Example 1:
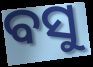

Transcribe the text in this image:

ବସୁ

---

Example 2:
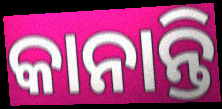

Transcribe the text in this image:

କାନାନ୍ତି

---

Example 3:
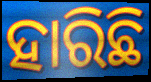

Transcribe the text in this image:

ହାରିଛି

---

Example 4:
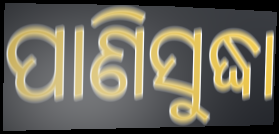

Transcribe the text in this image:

ପାଣିସୁଦ୍ଧା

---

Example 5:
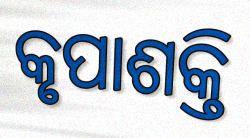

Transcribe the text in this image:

କୃପାଶକ୍ତି